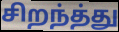
சிறந்த்து